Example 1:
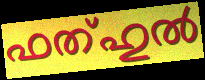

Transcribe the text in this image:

ഫത്ഹുൽ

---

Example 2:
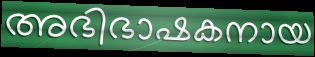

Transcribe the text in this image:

അഭിഭാഷകനായ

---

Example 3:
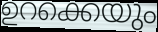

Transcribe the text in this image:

ഉറക്കെയും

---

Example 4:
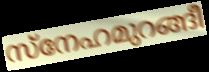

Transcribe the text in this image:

സ്നേഹമുറങ്ങീ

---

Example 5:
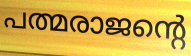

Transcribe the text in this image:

പത്മരാജന്റെ